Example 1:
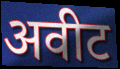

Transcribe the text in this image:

अवीट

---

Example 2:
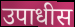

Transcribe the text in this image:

उपाधीस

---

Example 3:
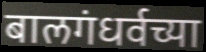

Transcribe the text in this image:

बालगंधर्वच्या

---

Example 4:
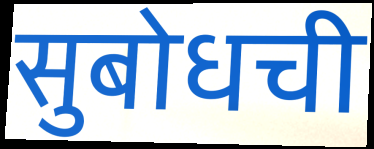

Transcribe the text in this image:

सुबोधची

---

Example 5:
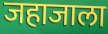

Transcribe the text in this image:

जहाजाला